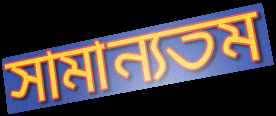
সামান্যতম